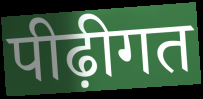
पीढ़ीगत